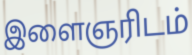
இளைஞரிடம்